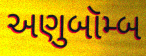
અણુબૉમ્બ